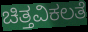
ಚಿತ್ತವಿಕಲತೆ